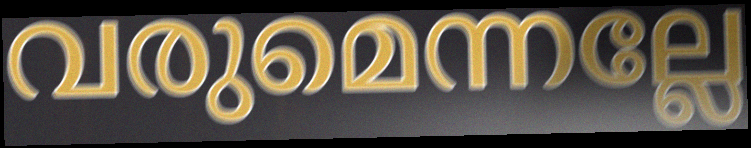
വരുമെന്നല്ലേ